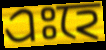
এঃহে